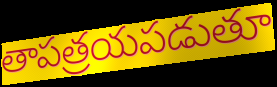
తాపత్రయపడుతూ